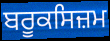
ਬਰੂਕਸਿਜ਼ਮ